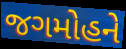
જગમોહને